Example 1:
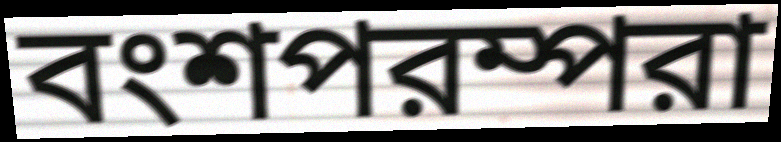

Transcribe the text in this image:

বংশপরম্পরা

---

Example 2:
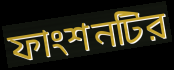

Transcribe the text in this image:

ফাংশনটির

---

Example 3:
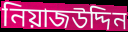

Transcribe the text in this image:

নিয়াজউদ্দিন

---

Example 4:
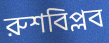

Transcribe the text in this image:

রুশবিপ্লব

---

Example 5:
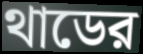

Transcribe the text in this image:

থাডের